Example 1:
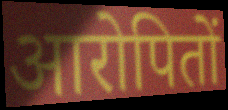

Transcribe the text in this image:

आरोपितों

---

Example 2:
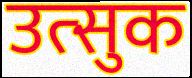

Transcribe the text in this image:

उत्‍सुक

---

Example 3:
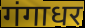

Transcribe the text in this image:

गंगाधर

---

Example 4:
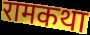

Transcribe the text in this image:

रामकथा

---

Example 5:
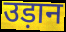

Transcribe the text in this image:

उड़ान